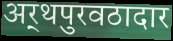
अर्थपुरवठादार